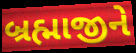
બ્રહ્માજીને